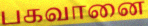
பகவானை